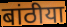
बांठीया